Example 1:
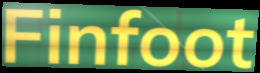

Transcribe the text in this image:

Finfoot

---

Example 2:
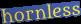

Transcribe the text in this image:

hornless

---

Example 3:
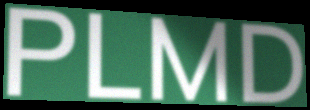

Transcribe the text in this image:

PLMD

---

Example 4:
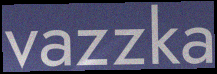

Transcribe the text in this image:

vazzka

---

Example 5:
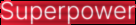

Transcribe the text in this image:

Superpower